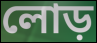
লোড়